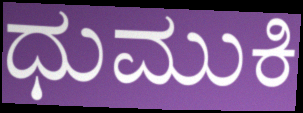
ಧುಮುಕಿ